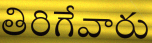
తిరిగేవారు